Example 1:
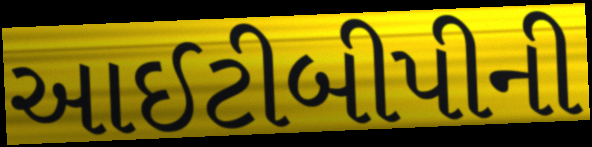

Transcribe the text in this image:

આઈટીબીપીની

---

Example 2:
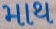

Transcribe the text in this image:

માથ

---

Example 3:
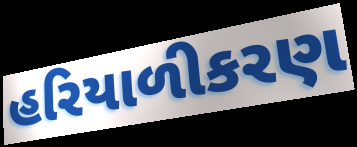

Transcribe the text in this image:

હરિયાળીકરણ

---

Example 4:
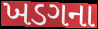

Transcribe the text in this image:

ખડગના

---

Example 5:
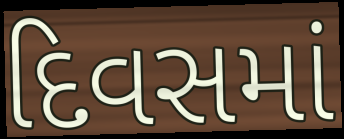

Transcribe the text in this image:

દિવસમાં